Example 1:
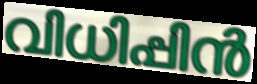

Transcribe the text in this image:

വിധിപ്പിൻ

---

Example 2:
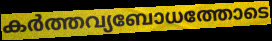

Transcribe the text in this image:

കർത്തവ്യബോധത്തോടെ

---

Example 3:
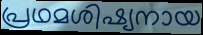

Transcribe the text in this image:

പ്രഥമശിഷ്യനായ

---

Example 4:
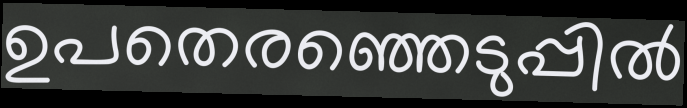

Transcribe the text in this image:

ഉപതെരഞ്ഞെടുപ്പിൽ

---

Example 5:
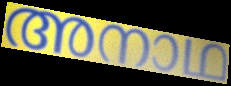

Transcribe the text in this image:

അനാഥ